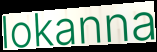
lokanna